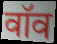
वॉव